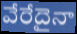
వేరేదైనా